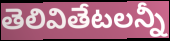
తెలివితేటలన్నీ